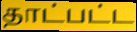
தாட்பட்ட